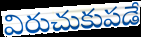
విరుచుకుపడే